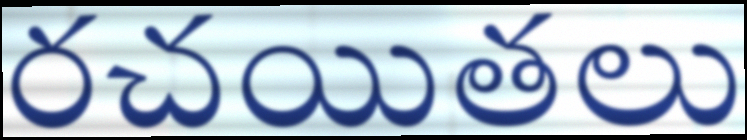
రచయితలు